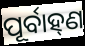
ପୂର୍ବାହ୍‌ଣ